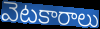
వెటకారాలు